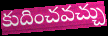
కుదించవచ్చు